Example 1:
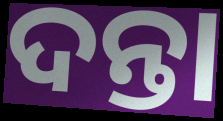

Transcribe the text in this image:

ଦନ୍ତା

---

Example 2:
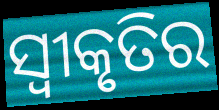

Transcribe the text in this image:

ସ୍ୱୀକୃତିର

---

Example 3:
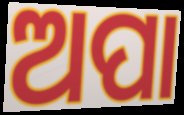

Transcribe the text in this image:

ଅପା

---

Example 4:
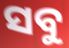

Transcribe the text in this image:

ସବୁ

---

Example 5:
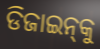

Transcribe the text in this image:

ଡିଜାଇନ୍‌କୁ